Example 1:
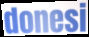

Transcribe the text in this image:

donesi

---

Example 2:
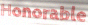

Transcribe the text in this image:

Honorable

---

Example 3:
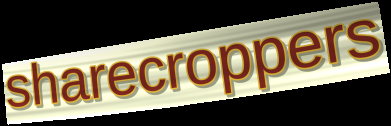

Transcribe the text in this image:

sharecroppers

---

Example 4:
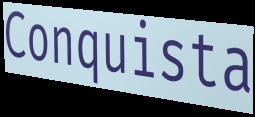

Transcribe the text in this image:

Conquista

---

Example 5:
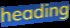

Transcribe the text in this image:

heading